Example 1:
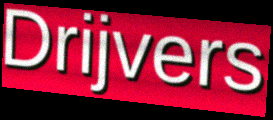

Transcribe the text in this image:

Drijvers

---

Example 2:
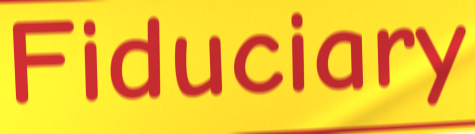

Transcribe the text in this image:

Fiduciary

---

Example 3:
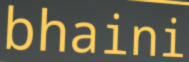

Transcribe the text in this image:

bhaini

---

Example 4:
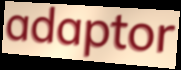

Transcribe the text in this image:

adaptor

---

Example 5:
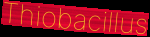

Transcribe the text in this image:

Thiobacillus